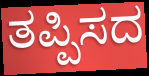
ತಪ್ಪಿಸದ